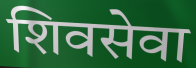
शिवसेवा